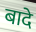
बादे